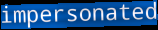
impersonated